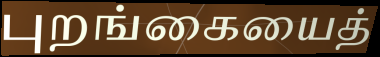
புறங்கையைத்